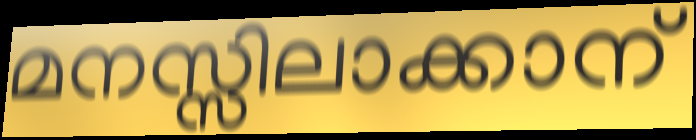
മനസ്സിലാക്കാന്